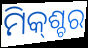
ମିକ୍‌ଶ୍ଚର